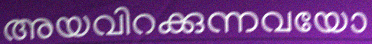
അയവിറക്കുന്നവയോ